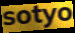
sotyo